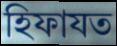
হিফাযত